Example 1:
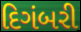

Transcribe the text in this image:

દિગંબરી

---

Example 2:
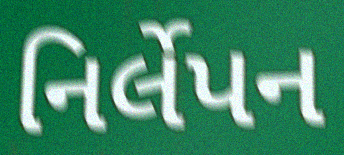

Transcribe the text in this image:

નિર્લેપન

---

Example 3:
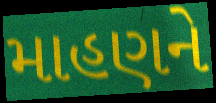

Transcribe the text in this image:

માહણને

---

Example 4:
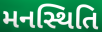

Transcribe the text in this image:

મનસ્થિતિ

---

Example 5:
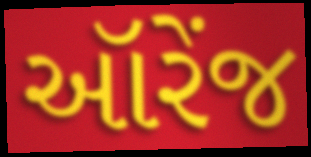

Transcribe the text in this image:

ઑરેંજ